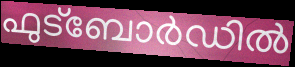
ഫുട്ബോർഡിൽ